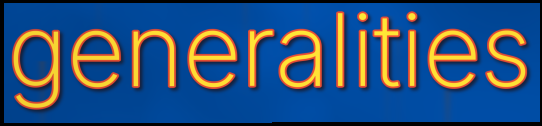
generalities